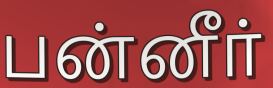
பன்னீர்